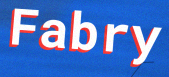
Fabry